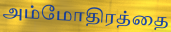
அம்மோதிரத்தை